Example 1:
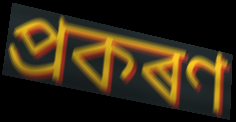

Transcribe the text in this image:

প্ৰকৰণ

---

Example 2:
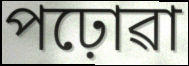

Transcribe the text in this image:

পঢ়োৱা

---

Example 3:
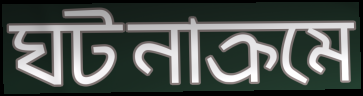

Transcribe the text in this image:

ঘটনাক্ৰমে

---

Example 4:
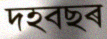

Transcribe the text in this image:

দহবছৰ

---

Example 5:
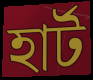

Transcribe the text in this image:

হাৰ্ট